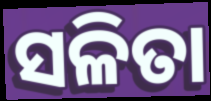
ସଳିତା